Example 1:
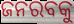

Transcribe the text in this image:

ଜନରବକୁ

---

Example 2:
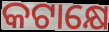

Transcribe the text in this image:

କଟାକ୍ଷେ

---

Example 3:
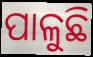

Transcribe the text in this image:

ପାଳୁଛି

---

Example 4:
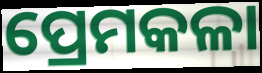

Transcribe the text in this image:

ପ୍ରେମକଳା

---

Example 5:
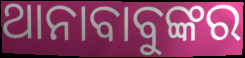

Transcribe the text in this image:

ଥାନାବାବୁଙ୍କର